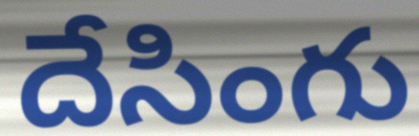
దేసింగు